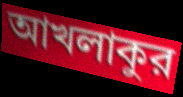
আখলাকুর